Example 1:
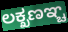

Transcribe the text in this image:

ಲಕ್ಖಣಞ್ಚ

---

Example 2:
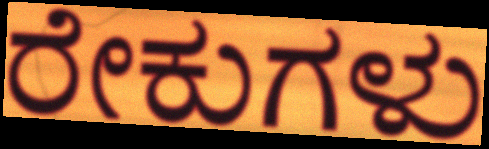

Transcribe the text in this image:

ರೇಕುಗಳು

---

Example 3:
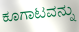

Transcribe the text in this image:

ಕೂಗಾಟವನ್ನು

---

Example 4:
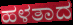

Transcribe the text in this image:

ಹಳತಾದ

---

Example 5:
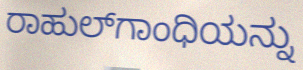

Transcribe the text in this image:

ರಾಹುಲ್‌ಗಾಂಧಿಯನ್ನು